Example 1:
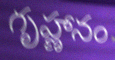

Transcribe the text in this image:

గృహ్ణానం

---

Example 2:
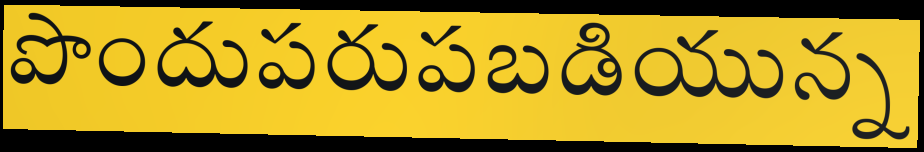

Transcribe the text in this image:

పొందుపరుపబడియున్న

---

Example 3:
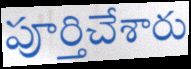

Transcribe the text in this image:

పూర్తిచేశారు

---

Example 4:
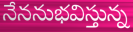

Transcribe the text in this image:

నేననుభవిస్తున్న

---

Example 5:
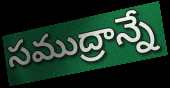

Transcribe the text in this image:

సముద్రాన్నే